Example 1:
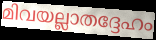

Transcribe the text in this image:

മിവയല്ലാതദ്ദേഹം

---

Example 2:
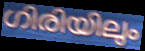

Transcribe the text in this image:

ഗിരിയിലും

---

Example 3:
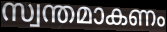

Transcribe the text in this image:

സ്വന്തമാകണം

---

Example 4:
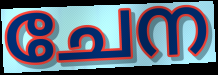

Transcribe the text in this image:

ചേന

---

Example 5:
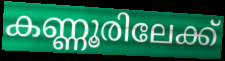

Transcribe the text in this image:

കണ്ണൂരിലേക്ക്